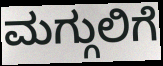
ಮಗ್ಗುಲಿಗೆ